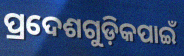
ପ୍ରଦେଶଗୁଡ଼ିକପାଇଁ